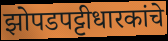
झोपडपट्टीधारकांचे